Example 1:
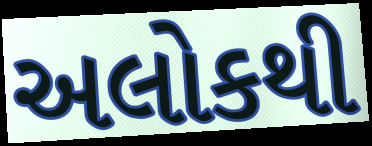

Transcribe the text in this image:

અલોકથી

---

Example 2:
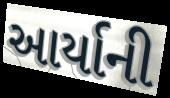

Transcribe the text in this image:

આર્યાની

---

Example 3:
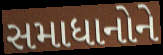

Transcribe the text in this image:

સમાધાનોને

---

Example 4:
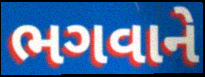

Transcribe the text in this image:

ભગવાને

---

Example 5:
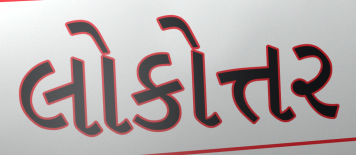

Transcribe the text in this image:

લોકોત્તર